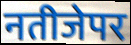
नतीजेपर